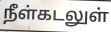
நீள்கடலுள்